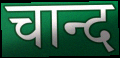
चान्द